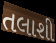
તલાશી